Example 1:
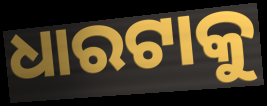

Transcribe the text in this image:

ଧାରଟାକୁ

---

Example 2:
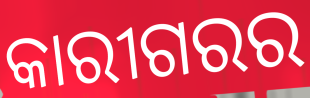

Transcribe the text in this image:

କାରୀଗରର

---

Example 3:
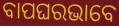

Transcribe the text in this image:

ବାପଘରଭାବେ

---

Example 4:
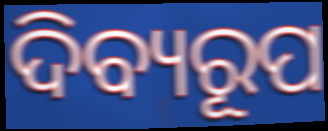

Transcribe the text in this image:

ଦିବ୍ୟରୂପ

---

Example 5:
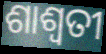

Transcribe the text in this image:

ଶାଶ୍ଵତୀ